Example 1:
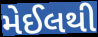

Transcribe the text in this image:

મેઈલથી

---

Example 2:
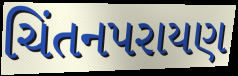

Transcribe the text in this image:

ચિંતનપરાયણ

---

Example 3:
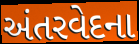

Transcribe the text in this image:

અંતરવેદના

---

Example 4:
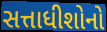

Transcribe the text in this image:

સત્તાધીશોનો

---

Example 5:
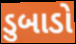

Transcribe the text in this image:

ડુબાડો